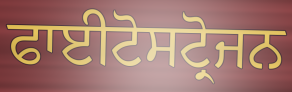
ਫਾਈਟੋਸਟ੍ਰੋਜਨ